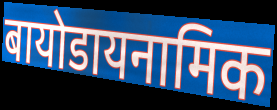
बायोडायनामिक